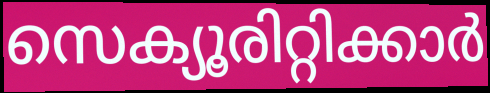
സെക്യൂരിറ്റിക്കാർ